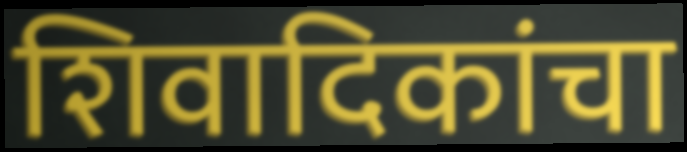
शिवादिकांचा